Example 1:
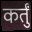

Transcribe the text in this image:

कर्तुं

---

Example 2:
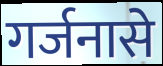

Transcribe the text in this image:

गर्जनासे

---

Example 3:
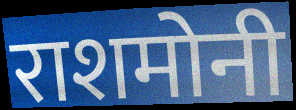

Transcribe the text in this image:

राशमोनी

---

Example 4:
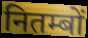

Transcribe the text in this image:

नितम्बों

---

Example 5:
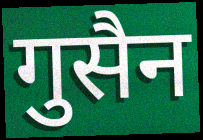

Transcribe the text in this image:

गुसैन